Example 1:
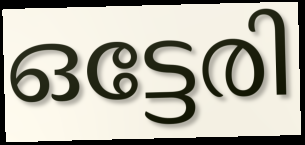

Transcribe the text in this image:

ഒട്ടേരി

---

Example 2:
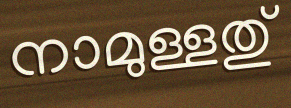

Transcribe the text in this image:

നാമുള്ളതു്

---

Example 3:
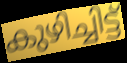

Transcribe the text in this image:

കുഴിച്ചിട്ട്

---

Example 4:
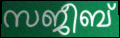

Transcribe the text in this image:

സജീബ്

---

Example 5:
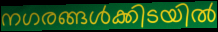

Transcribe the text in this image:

നഗരങ്ങൾക്കിടയിൽ